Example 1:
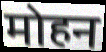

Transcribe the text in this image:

मोहन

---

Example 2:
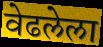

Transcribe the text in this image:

वेढलेला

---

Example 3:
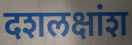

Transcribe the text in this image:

दशलक्षांश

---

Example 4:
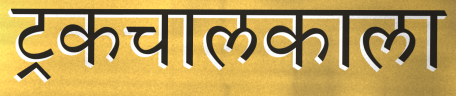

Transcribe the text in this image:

ट्रकचालकाला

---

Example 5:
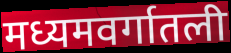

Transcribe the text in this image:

मध्यमवर्गातली